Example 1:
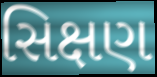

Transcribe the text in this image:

સિક્ષણ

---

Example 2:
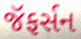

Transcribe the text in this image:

જૅફર્સન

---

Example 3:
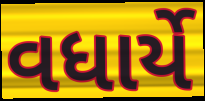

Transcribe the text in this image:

વધાર્યે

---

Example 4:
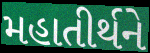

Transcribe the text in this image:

મહાતીર્થને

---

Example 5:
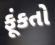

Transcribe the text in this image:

ફૂંકતો